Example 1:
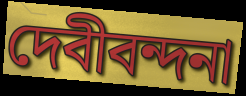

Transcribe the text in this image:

দেবীবন্দনা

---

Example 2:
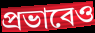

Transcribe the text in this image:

প্রভাবেও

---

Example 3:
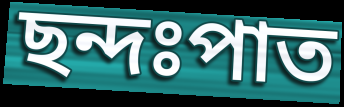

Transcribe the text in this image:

ছন্দঃপাত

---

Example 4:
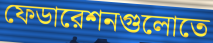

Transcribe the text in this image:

ফেডারেশনগুলোতে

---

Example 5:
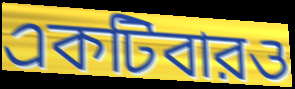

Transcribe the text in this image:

একটিবারও